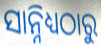
ସାନ୍ନିଧ୍ୟଠାରୁ